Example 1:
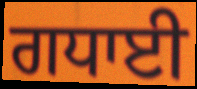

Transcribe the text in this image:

ਗਧਾਈ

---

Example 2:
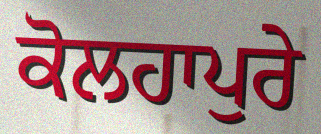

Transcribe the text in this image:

ਕੋਲਹਾਪੁਰੇ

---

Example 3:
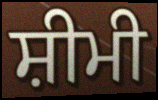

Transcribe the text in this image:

ਸ਼ੀਮੀ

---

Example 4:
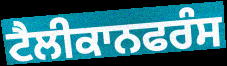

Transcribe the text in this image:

ਟੈਲੀਕਾਨਫਰੰਸ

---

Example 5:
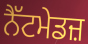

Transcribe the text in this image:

ਨੈੱਟਮੇਡਜ਼